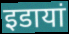
इडायां